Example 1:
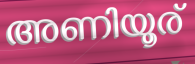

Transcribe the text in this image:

അണിയൂര്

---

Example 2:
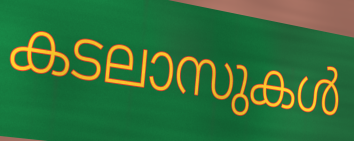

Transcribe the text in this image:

കടലാസുകൾ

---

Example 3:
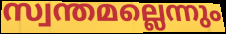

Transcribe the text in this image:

സ്വന്തമല്ലെന്നും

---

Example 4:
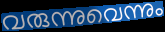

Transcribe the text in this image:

വരുന്നുവെന്നും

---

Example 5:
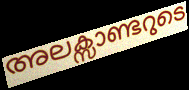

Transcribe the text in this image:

അലക്സാണ്ടറുടെ